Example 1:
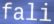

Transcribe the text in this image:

fali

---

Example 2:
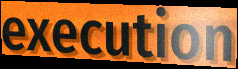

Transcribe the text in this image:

execution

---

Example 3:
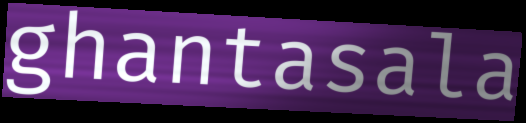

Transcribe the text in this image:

ghantasala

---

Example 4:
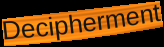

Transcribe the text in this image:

Decipherment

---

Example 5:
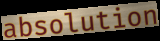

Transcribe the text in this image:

absolution